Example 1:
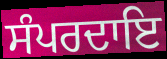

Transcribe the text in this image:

ਸੰਪਰਦਾਇ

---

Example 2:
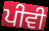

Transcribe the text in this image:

ਪੀਵੀ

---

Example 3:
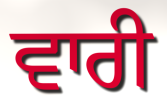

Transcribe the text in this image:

ਵਾਰੀ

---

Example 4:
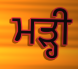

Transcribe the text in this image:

ਮੜ੍ਹੀ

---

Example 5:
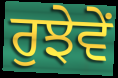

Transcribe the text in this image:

ਰੁਝੇਵੇਂ